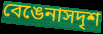
বেঙেনাসদৃশ